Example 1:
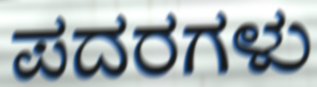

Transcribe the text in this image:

ಪದರಗಳು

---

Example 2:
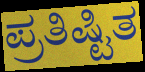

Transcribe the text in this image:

ಪ್ರತಿಷ್ಟಿತ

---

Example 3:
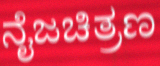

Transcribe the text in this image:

ನೈಜಚಿತ್ರಣ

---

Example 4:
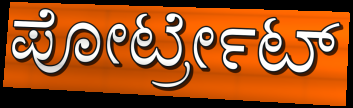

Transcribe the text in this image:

ಪೋರ್ಟ್ರೇಟ್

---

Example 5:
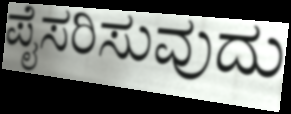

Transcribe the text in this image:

ಪೈಸರಿಸುವುದು